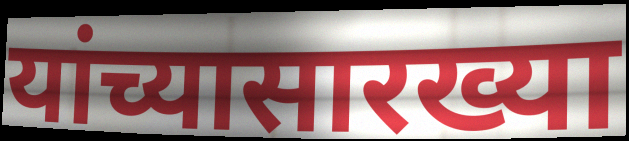
यांच्यासारख्या